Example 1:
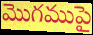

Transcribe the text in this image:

మొగముపై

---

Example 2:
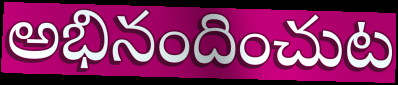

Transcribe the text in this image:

అభినందించుట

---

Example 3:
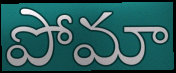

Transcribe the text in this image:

పోమా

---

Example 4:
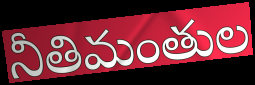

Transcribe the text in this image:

నీతిమంతుల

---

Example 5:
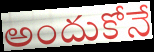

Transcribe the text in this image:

అందుకోనే